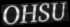
OHSU